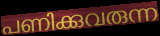
പണിക്കുവരുന്ന